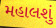
મહાલશું